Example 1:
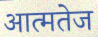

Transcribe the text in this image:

आत्मतेज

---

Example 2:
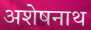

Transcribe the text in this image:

अशेषनाथ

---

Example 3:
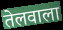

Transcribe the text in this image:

तेलवाला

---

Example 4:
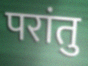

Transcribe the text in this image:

परांतु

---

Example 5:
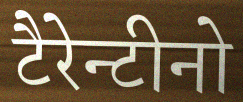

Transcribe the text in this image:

टैरेन्टीनो